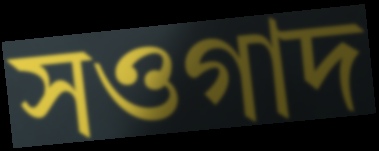
সওগাদ